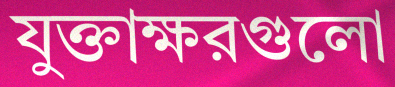
যুক্তাক্ষরগুলো